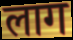
लाग